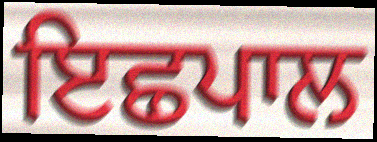
ਇਛਪਾਲ